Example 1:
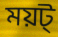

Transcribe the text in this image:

ময়ট্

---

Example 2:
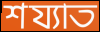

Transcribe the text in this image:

শয্যাত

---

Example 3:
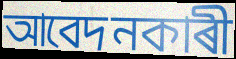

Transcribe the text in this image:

আবেদনকাৰী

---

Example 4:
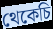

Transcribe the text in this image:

থেকেচি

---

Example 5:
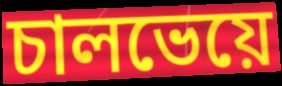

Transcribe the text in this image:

চালভেয়ে